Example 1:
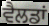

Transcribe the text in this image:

ਵੈਲਡਾਂ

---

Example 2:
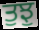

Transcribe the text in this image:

ਤੁਝੁ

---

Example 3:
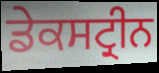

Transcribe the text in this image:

ਡੇਕਸਟ੍ਰੀਨ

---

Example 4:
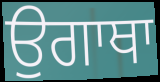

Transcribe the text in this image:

ਉਗਾਥਾ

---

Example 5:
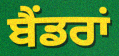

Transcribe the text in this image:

ਬੈਂਡਰਾਂ